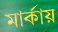
মার্কায়